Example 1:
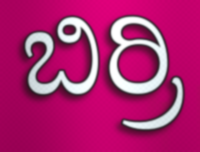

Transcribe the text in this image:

ಬಿರ್ರಿ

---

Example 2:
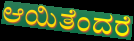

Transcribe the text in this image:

ಆಯಿತೆಂದರೆ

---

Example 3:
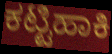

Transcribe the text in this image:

ಕಟ್ಟಿಹಾಕಿ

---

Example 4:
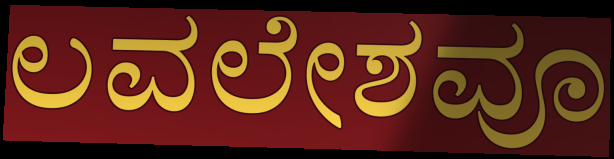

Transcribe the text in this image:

ಲವಲೇಶವೂ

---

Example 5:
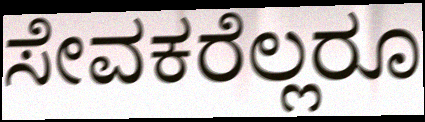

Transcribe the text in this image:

ಸೇವಕರೆಲ್ಲರೂ